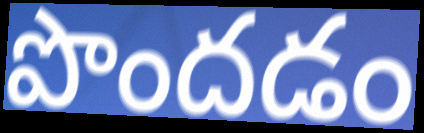
పొందడం